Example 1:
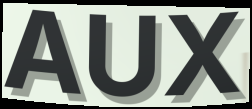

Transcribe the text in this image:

AUX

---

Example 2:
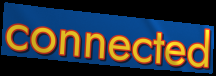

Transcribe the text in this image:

connected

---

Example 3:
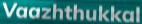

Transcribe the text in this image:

Vaazhthukkal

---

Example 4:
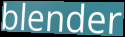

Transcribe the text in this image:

blender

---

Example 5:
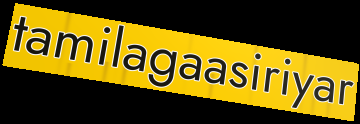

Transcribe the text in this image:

tamilagaasiriyar